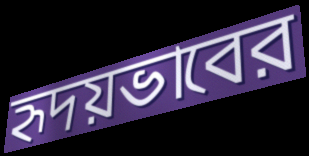
হৃদয়ভাবের